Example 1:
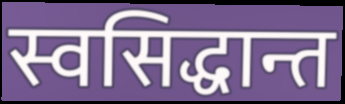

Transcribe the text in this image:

स्वसिद्धान्त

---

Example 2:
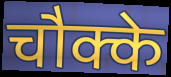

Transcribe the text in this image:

चौक्के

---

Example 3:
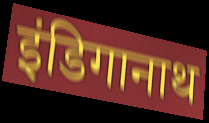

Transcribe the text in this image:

इंडिगानाथ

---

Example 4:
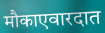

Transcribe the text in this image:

मौकाएवारदात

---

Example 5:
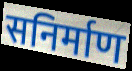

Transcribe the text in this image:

सनिर्माण